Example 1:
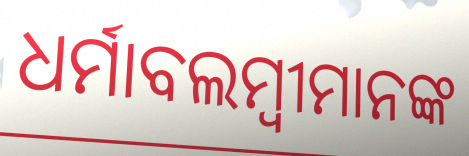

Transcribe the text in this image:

ଧର୍ମାବଲମ୍ବୀମାନଙ୍କ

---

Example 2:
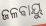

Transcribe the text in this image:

ଜଳଵାୟୁ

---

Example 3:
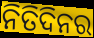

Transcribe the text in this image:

ନିତିଦିନର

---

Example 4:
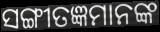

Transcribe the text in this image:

ସଙ୍ଗୀତଜ୍ଞମାନଙ୍କ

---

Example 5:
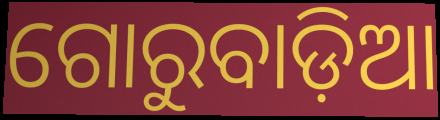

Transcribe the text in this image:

ଗୋରୁବାଡ଼ିଆ